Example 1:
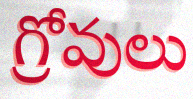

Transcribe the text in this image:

గ్రోవులు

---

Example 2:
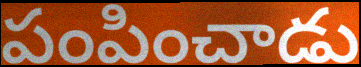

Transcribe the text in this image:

పంపించాడు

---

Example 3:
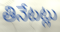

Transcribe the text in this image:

తినేటట్లు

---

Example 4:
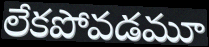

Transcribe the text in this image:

లేకపోవడమూ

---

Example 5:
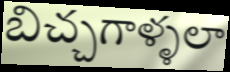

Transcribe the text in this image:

బిచ్చగాళ్ళలా